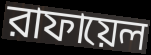
রাফায়েল